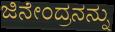
ಜಿನೇಂದ್ರನನ್ನು